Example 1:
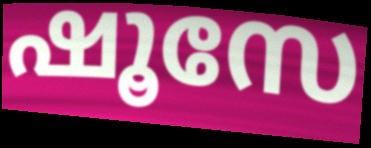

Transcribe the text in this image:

ഷൂസേ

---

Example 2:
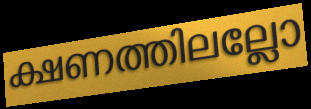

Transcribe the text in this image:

ക്ഷണത്തിലല്ലോ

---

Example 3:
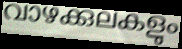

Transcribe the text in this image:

വാഴക്കുലകളും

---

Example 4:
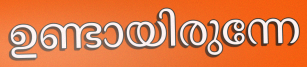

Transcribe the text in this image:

ഉണ്ടായിരുന്നേ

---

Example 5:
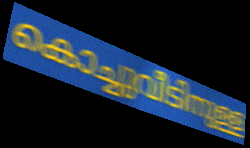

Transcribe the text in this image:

കൊച്ചുവീടിനുള്ള